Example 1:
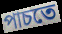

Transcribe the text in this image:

পাচতে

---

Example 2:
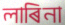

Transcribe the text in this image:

লাৰিনা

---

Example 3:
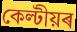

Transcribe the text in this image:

কেল্টীয়ৰ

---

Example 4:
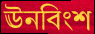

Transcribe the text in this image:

ঊনবিংশ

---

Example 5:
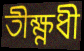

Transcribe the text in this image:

তীক্ষ্ণধী